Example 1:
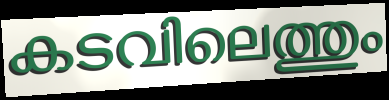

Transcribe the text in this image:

കടവിലെത്തും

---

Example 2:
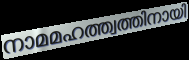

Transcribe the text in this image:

നാമമഹത്ത്വത്തിനായി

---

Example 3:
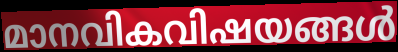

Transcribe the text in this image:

മാനവികവിഷയങ്ങൾ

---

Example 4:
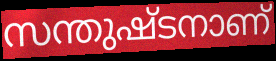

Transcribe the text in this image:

സന്തുഷ്ടനാണ്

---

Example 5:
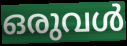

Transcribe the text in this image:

ഒരുവൾ